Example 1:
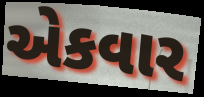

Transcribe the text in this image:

એકવાર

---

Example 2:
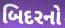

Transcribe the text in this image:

બિદરનો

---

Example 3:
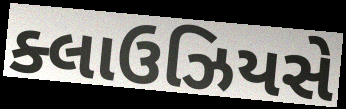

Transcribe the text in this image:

ક્લાઉઝિયસે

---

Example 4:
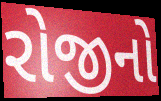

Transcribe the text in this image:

રોજીનો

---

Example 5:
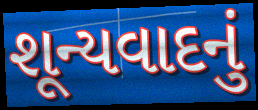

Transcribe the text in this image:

શૂન્યવાદનું